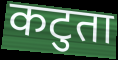
कटुता